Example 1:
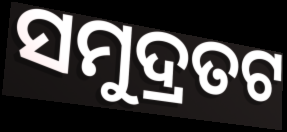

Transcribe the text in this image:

ସମୁଦ୍ରତଟ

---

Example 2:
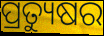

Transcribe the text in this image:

ପ୍ରତ୍ୟୁଷର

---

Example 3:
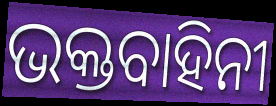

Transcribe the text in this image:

ଭକ୍ତବାହିନୀ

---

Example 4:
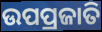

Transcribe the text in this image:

ଉପପ୍ରଜାତି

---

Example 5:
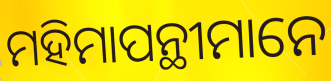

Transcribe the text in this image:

ମହିମାପନ୍ଥୀମାନେ